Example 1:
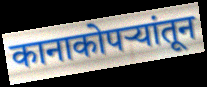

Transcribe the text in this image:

कानाकोपर्‍यांतून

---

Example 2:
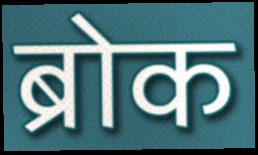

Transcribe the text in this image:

ब्रोक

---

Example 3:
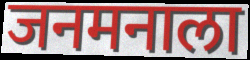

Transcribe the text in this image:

जनमनाला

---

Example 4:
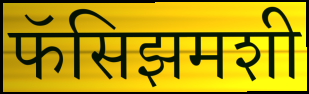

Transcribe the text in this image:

फॅसिझमशी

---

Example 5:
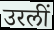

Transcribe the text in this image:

उरलीं